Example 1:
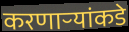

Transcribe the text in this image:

करणाऱ्यांकडे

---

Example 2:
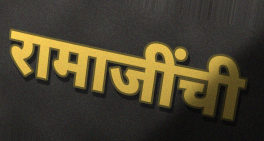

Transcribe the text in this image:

रामाजींची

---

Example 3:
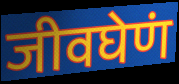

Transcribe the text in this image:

जीवघेणं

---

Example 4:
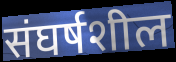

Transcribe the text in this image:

संघर्षशील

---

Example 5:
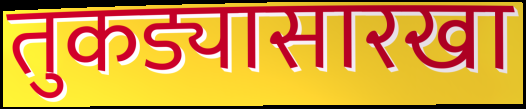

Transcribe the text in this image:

तुकड्यासारखा